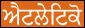
ਐਟਲੇਟਿਕੋ